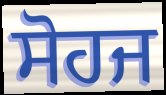
ਸੋਹਜ